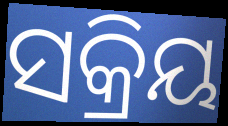
ସକ୍ରିୟ